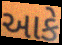
આકે